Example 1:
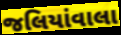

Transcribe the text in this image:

જલિયાંવાલા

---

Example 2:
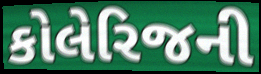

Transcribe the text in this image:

કોલેરિજની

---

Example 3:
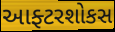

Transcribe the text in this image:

આફ્ટરશોકસ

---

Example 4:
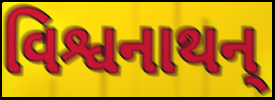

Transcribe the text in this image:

વિશ્વનાથન્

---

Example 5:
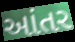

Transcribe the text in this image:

આંતર